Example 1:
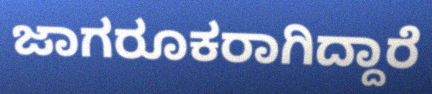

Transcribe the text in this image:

ಜಾಗರೂಕರಾಗಿದ್ದಾರೆ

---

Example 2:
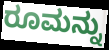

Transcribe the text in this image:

ರೂಮನ್ನು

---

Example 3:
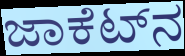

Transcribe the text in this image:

ಜಾಕೆಟ್‌ನ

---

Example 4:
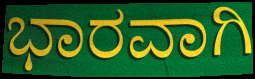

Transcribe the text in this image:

ಭಾರವಾಗಿ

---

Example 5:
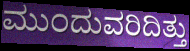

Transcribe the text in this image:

ಮುಂದುವರಿದಿತ್ತು